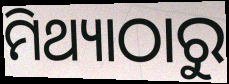
ମିଥ୍ୟାଠାରୁ